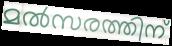
മൽസരത്തിന്